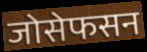
जोसेफसन